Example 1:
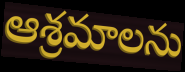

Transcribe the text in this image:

ఆశ్రమాలను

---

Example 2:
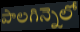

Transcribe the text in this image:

పాలగిన్నెలో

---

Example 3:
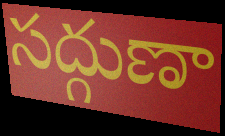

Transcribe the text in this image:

సద్గుణా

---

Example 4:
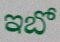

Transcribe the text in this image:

ఇబో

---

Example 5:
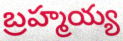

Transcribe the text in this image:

బ్రహ్మయ్య